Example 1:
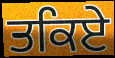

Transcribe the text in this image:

ਤਕਿਏ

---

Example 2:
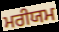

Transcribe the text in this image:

ਮਰੀਯਮ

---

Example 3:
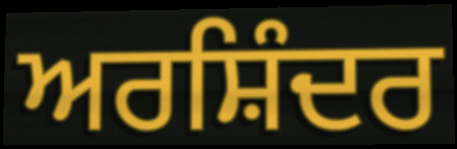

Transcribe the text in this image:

ਅਰਸ਼ਿੰਦਰ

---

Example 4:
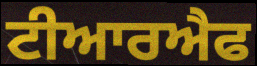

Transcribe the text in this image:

ਟੀਆਰਐਫ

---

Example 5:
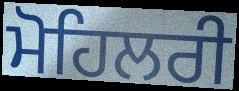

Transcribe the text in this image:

ਮੋਹਿਲਰੀ